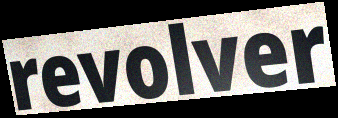
revolver